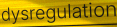
dysregulation